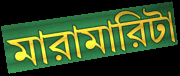
মারামারিটা